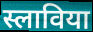
स्लाविया